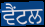
ਵੈਂਟਲ